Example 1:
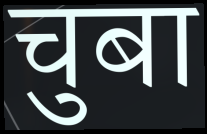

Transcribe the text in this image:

चुबा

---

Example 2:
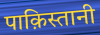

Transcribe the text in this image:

पाक़िस्तानी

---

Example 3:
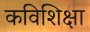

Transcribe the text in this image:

कविशिक्षा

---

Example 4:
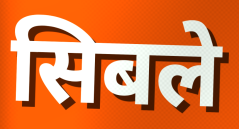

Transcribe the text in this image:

सिबले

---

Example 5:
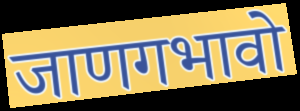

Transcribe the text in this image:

जाणगभावो